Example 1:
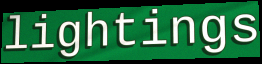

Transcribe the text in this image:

lightings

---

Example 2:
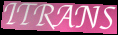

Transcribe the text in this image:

ITRANS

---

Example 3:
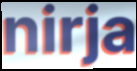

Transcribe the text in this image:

nirja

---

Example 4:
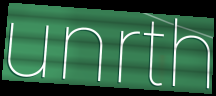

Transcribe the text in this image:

unrth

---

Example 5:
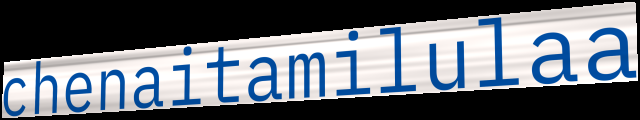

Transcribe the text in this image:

chenaitamilulaa